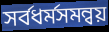
সর্বধর্মসমন্বয়